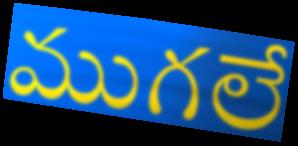
ముగలే